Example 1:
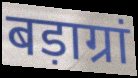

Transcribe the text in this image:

बड़ाग्रां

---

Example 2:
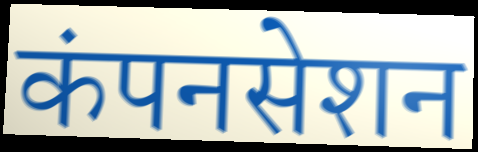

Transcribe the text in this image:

कंपनसेशन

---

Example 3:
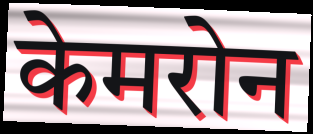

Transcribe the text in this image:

केमरोन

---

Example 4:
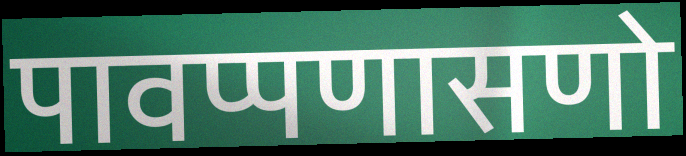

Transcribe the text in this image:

पावप्पणासणो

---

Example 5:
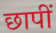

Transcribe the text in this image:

छापीं